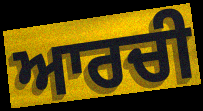
ਆਰਚੀ